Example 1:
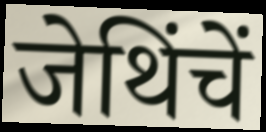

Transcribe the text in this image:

जेथिंचें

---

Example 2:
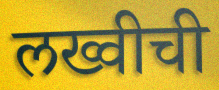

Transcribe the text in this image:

लख्वीची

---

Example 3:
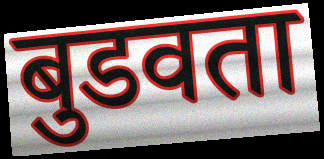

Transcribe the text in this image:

बुडवता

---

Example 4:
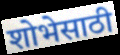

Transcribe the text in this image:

शोभेसाठी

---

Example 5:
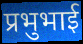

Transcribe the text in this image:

प्रभुभाई